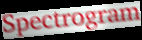
Spectrogram